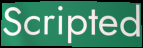
Scripted